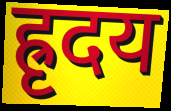
ह्रृदय